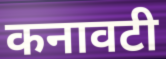
कनावटी